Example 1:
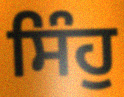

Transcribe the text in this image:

ਸਿੰਹੁ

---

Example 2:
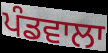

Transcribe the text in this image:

ਪੰਡਵਾਲਾ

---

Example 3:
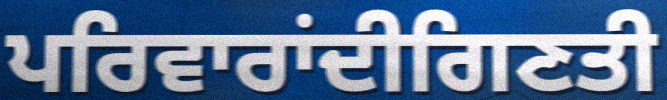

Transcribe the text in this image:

ਪਰਿਵਾਰਾਂਦੀਗਿਣਤੀ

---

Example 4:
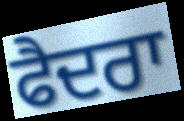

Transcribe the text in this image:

ਫੈਦਰਾ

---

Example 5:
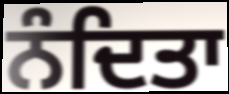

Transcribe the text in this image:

ਨੰਦਿਤਾ